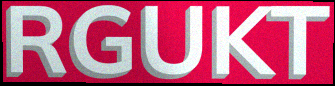
RGUKT